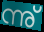
ന്നു്